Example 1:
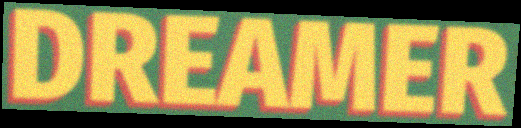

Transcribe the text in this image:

DREAMER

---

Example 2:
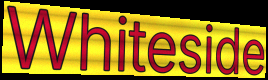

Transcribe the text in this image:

Whiteside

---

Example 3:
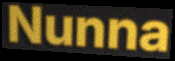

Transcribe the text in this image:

Nunna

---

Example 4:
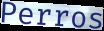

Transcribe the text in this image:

Perros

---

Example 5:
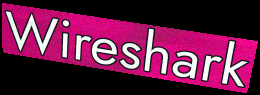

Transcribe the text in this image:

Wireshark